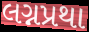
લગ્નપ્રથા